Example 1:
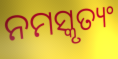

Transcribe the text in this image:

ନମସ୍କୃତ୍ୟଂ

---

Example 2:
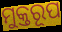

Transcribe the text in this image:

ମୁକ୍ତରୂପ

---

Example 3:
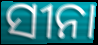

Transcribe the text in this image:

ସୀନା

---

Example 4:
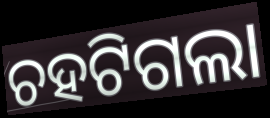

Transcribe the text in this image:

ଚହଟିଗଲା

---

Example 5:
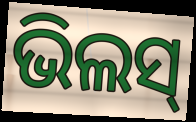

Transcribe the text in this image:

ଭିଲସ୍